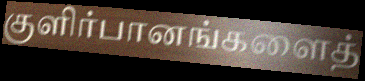
குளிர்பானங்களைத்